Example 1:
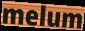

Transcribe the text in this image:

melum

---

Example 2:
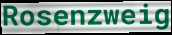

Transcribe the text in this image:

Rosenzweig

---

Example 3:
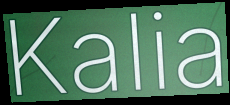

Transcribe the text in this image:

Kalia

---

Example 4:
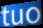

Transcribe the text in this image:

tuo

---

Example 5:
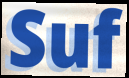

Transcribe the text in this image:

Suf